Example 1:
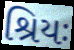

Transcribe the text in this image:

શ્રિયઃ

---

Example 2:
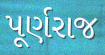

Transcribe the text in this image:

પૂર્ણરાજ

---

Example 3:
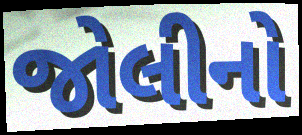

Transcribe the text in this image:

જોલીનો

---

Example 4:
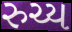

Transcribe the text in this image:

રુચ્ય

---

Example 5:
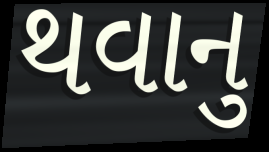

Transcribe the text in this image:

થવાનુ